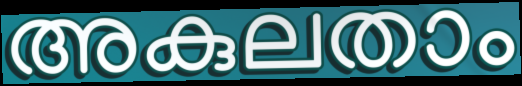
അകുലതാം